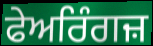
ਫੇਅਰਿੰਗਜ਼